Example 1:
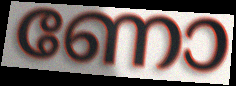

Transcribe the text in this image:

ണോ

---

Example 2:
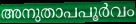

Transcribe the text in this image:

അനുതാപപൂർവം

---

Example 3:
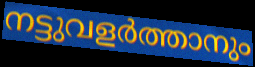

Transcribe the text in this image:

നട്ടുവളർത്താനും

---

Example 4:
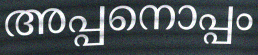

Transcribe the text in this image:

അപ്പനൊപ്പം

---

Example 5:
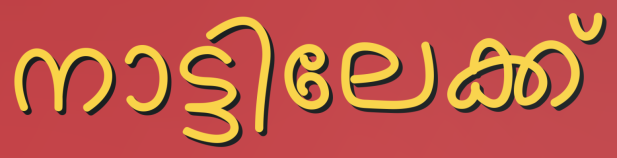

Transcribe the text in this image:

നാട്ടിലേക്ക്